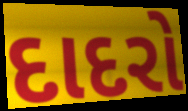
દાદરો